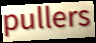
pullers